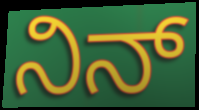
ನಿನ್